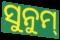
ସୁନୁମ୍